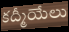
కద్మీయేలు